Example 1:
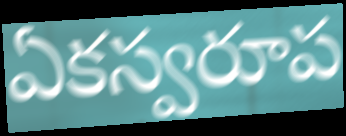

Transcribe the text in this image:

ఏకస్వరూప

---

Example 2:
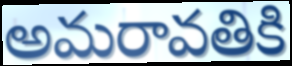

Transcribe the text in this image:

అమరావతికి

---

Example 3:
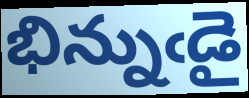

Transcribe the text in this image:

భిన్నుఁడై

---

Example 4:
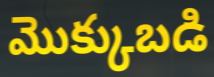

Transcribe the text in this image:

మొక్కుబడి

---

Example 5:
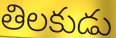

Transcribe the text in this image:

తిలకుడు